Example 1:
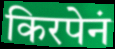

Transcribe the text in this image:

किरपेनं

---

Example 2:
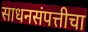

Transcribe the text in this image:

साधनसंपत्तीचा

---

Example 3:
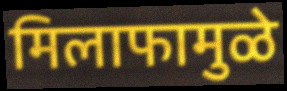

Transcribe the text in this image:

मिलाफामुळे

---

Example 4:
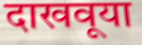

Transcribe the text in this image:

दाखवूया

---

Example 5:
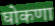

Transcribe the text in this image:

घोकणा